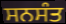
ਸਨਸੰਤ